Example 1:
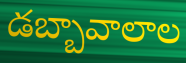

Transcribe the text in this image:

డబ్బావాలాల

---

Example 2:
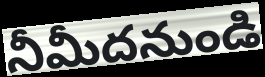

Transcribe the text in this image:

నీమీదనుండి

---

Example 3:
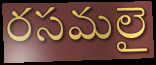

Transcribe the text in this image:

రసమలై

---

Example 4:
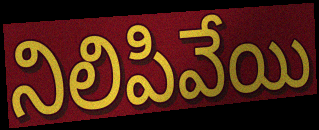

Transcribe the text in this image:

నిలిపివేయి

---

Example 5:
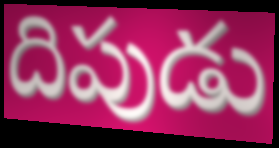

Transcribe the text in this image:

దిపుడు